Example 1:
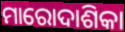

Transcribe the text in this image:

ମାରୋଦାଶିକା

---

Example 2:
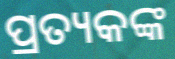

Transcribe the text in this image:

ପ୍ରତ୍ୟକଙ୍କ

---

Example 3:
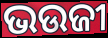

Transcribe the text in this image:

ଭଉଜୀ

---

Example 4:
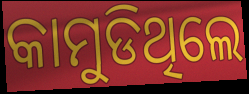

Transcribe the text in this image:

କାମୁଡିଥିଲେ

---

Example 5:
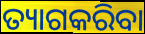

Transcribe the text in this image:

ତ୍ୟାଗକରିବା